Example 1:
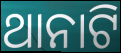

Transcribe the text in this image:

ଥାନାଟି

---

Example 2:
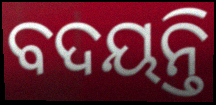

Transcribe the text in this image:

ବଦୟନ୍ତି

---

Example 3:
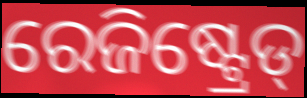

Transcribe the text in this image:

ରେଜିଷ୍ଟ୍ରେଡ୍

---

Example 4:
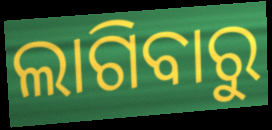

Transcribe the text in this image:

ଲାଗିବାରୁ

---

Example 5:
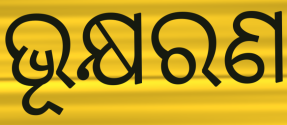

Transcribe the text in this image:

ଭୂକ୍ଷରଣ